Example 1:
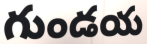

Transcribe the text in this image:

గుండయ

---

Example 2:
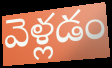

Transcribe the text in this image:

వెళ్లడం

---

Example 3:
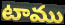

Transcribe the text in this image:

టాము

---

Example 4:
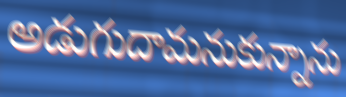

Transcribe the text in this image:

అడుగుదామనుకున్నాను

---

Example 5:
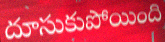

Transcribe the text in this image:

దూసుకుపోయింది